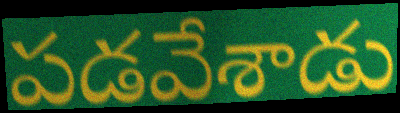
పడవేశాడు